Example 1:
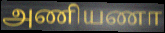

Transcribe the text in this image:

அணியணா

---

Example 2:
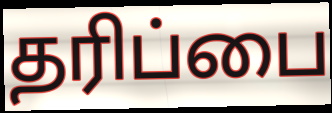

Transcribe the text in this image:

தரிப்பை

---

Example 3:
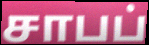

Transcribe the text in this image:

சாபப்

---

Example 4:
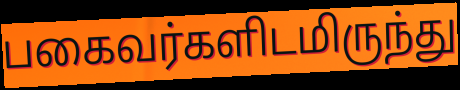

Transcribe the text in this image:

பகைவர்களிடமிருந்து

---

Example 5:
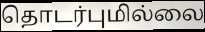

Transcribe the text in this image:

தொடர்புமில்லை